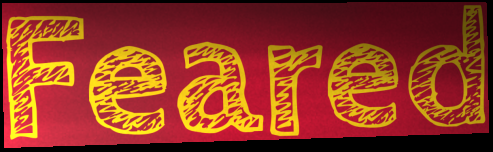
Feared